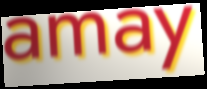
amay